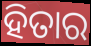
ହିତାର